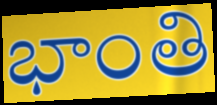
భాంతి